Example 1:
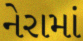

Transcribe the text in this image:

નેરામાં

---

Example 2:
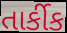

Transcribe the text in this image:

તાર્કીક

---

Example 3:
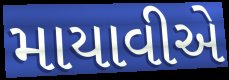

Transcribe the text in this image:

માયાવીએ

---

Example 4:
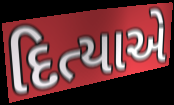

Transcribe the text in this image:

દિત્યાએ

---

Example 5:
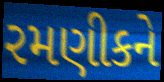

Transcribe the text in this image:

રમણીકને